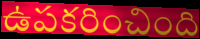
ఉపకరించింది